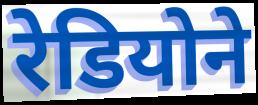
रेडियोने